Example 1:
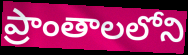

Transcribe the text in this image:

ప్రాంతాలలోని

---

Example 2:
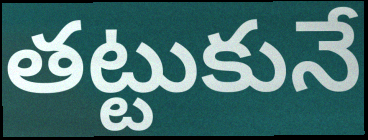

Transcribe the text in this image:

తట్టుకునే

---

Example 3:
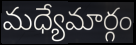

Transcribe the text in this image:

మధ్యేమార్గం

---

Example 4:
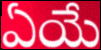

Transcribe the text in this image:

ఏయే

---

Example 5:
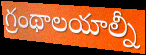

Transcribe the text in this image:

గ్రంథాలయాల్నీ